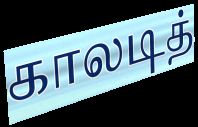
காலடித்